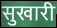
सुखारी